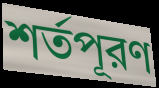
শর্তপূরণ